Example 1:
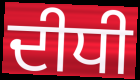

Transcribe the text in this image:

ਦੀਧੀ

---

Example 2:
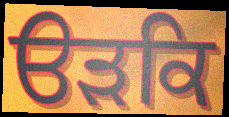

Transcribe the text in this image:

ੳੜਕਿ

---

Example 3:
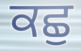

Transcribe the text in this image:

ਕਛੁ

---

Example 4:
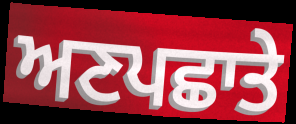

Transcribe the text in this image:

ਅਣਪਛਾਤੇ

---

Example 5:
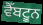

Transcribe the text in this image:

ਵੈੱਬਟੂਨ